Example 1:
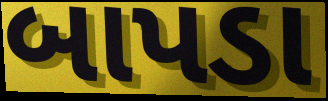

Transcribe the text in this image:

બાપડા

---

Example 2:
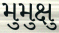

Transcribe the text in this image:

મુમુક્ષુ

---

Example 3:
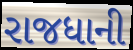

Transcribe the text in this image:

રાજધાની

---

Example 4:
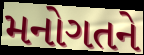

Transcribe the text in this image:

મનોગતને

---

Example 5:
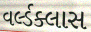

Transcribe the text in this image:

વર્લ્ડક્લાસ